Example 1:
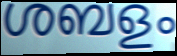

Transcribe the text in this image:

ശബളം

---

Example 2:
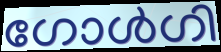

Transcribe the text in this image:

ഗോൾഗി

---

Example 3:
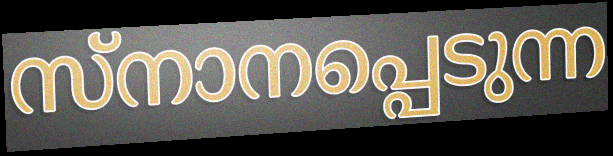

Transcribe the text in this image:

സ്നാനപ്പെടുന്ന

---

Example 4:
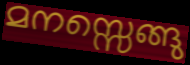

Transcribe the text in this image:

മനസ്സെങ്ങു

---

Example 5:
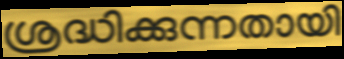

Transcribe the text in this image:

ശ്രദ്ധിക്കുന്നതായി